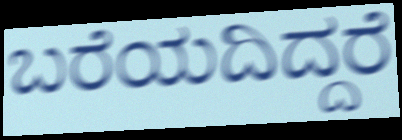
ಬರೆಯದಿದ್ದರೆ